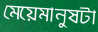
মেয়েমানুষটা